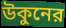
উকুনের